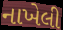
નાખેલી